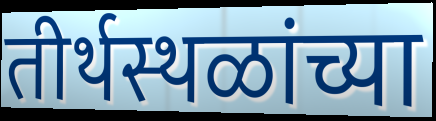
तीर्थस्थळांच्या